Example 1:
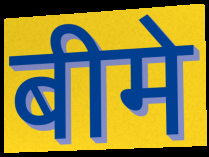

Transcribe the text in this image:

बीमे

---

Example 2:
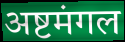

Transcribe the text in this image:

अष्टमंगल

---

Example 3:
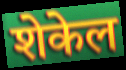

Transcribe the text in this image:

शेकेल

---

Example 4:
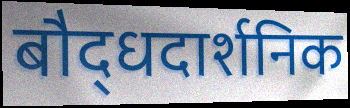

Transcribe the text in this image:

बौद्धदार्शनिक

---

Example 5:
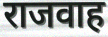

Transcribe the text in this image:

राजवाह